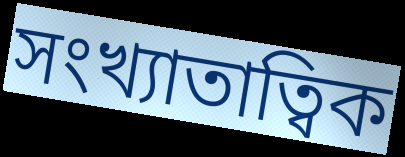
সংখ্যাতাত্বিক